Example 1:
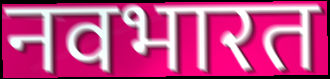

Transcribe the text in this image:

नवभारत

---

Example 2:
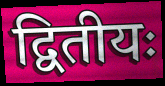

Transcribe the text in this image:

द्वितीयः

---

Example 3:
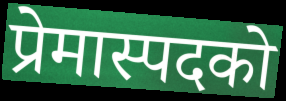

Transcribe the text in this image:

प्रेमास्पदको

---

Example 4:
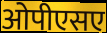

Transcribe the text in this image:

ओपीएसए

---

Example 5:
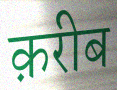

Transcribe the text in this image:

क़रीब